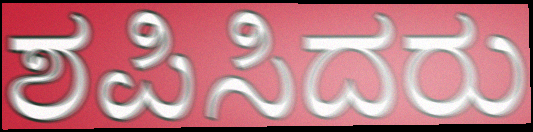
ಶಪಿಸಿದರು